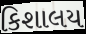
કિશાલય